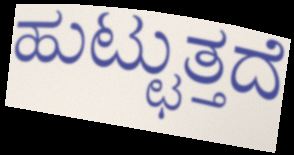
ಹುಟ್ಟುತ್ತದೆ